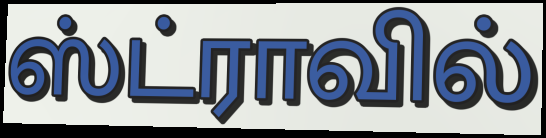
ஸ்ட்ராவில்